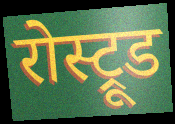
रोस्ट्रूड